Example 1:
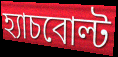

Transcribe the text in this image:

হ্যাচবোল্ট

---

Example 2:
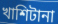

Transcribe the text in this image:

খাশিটানা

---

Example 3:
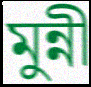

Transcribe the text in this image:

মুন্নী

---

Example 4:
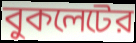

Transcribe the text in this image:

বুকলেটের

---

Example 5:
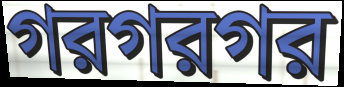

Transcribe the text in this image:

গরগরগর